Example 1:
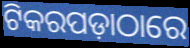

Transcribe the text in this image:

ଟିକରପଡ଼ାଠାରେ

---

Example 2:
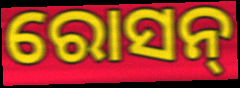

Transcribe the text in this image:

ରୋସନ୍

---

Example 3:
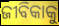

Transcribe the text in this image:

ଜୀବିକାକୁ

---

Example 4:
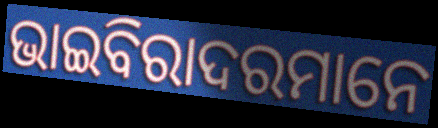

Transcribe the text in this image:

ଭାଇବିରାଦରମାନେ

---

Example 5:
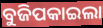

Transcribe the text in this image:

ବୁଜିପକାଇଲା